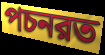
পচনরত